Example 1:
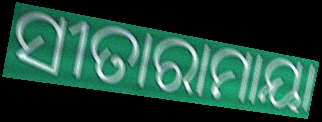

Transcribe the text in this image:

ସୀତାରାମାୟା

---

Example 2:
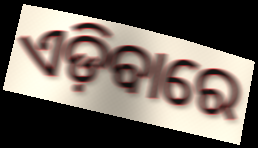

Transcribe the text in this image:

ଏଡ଼ିବାରେ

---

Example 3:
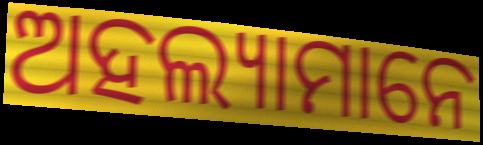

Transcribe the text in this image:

ଅହଲ୍ୟାମାନେ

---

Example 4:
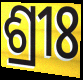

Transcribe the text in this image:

ଶ୍ରୀଃ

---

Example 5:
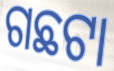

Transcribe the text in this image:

ଗଛଟା